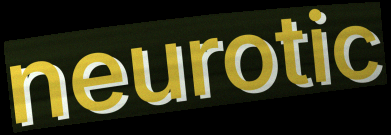
neurotic